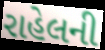
રાહેલની